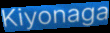
Kiyonaga